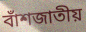
বাঁশজাতীয়